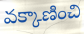
వక్కాణించి